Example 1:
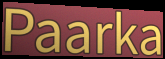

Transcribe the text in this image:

Paarka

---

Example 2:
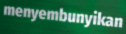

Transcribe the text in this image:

menyembunyikan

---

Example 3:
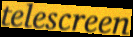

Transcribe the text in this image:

telescreen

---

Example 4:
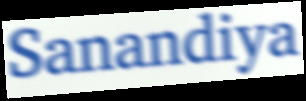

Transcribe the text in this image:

Sanandiya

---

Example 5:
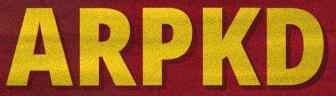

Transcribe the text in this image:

ARPKD